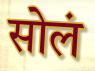
सोलं